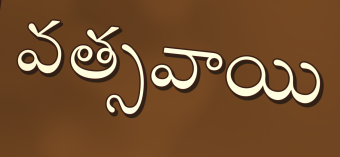
వత్సవాయి